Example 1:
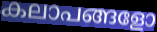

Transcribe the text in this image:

കലാപങ്ങളോ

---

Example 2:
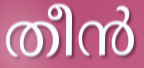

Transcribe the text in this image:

തീൻ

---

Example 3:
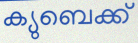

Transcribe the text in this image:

ക്യുബെക്ക്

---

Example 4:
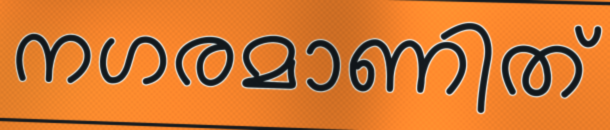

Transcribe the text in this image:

നഗരമാണിത്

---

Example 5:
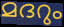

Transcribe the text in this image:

മദറും